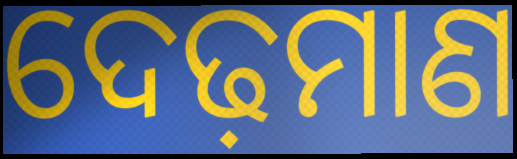
ଦେଢ଼ମାଣ